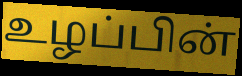
உழப்பின்